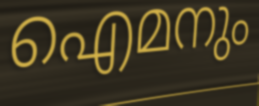
ഐമനും